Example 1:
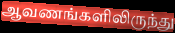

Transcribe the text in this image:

ஆவணங்களிலிருந்து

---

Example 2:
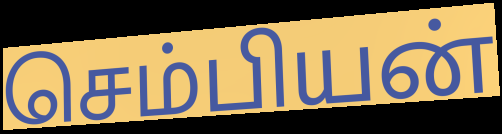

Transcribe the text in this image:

செம்பியன்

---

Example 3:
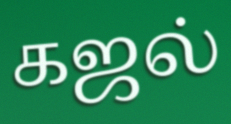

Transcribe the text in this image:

கஜல்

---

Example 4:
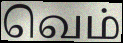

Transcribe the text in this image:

வெம்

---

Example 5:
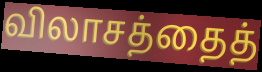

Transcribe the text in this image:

விலாசத்தைத்